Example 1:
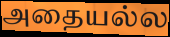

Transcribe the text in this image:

அதையல்ல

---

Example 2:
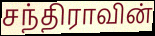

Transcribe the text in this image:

சந்திராவின்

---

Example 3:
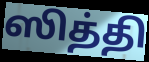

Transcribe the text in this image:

ஸித்தி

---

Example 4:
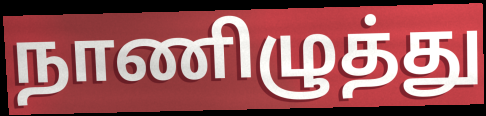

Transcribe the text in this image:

நாணிழுத்து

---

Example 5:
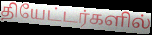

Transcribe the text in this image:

தியேட்டர்களில்